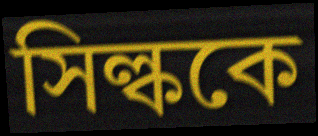
সিল্ককে